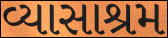
વ્યાસાશ્રમ